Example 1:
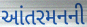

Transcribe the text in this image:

આંતરમનની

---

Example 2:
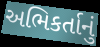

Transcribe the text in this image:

અભિકર્તાનું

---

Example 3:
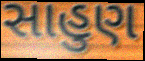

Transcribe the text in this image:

સાહુણ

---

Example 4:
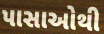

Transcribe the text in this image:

પાસાઓથી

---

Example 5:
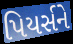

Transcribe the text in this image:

પિયર્સને